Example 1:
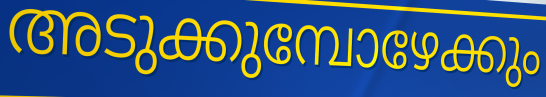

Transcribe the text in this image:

അടുക്കുമ്പോഴേക്കും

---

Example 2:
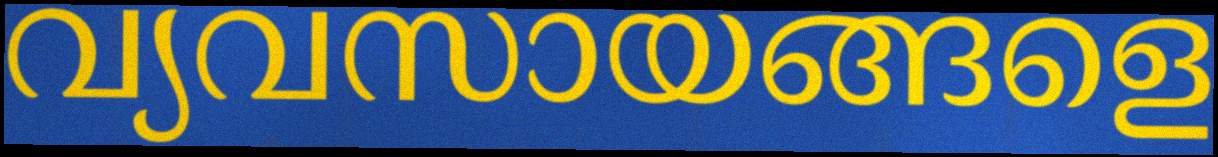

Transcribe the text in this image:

വ്യവസായങ്ങളെ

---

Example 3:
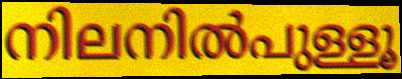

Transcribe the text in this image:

നിലനിൽപുള്ളൂ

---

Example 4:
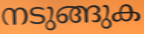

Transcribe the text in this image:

നടുങ്ങുക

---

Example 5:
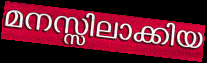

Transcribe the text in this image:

മനസ്സിലാക്കിയ